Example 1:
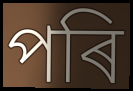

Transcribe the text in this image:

পৰি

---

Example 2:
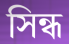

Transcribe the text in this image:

সিন্ধ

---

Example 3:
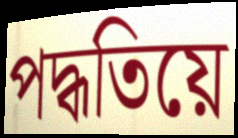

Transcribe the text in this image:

পদ্ধতিয়ে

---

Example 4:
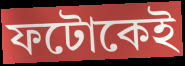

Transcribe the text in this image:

ফটোকেই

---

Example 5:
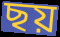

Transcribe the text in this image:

ছয়